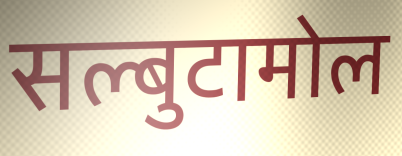
सल्बुटामोल